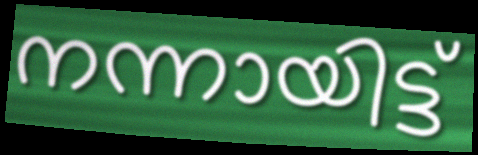
നന്നായിട്ട്